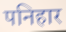
पनिहार